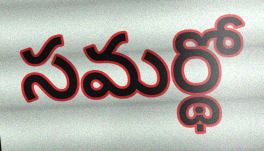
సమర్థో